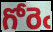
గోరెఁ